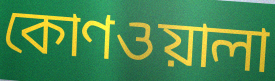
কোণওয়ালা